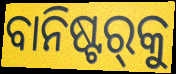
ବାନିଷ୍ଟର୍‍କୁ